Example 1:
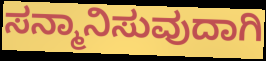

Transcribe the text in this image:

ಸನ್ಮಾನಿಸುವುದಾಗಿ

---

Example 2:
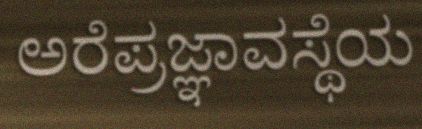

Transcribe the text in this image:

ಅರೆಪ್ರಜ್ಞಾವಸ್ಥೆಯ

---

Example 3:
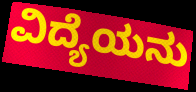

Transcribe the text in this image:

ವಿದ್ಯೆಯನು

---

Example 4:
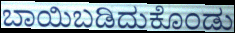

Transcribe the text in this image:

ಬಾಯಿಬಡಿದುಕೊಂಡು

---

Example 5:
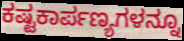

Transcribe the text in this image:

ಕಷ್ಟಕಾರ್ಪಣ್ಯಗಳನ್ನೂ